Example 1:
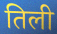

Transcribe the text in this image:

तिली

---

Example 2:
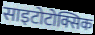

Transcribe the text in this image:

साइटोटोक्सिक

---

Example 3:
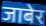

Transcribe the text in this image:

जाबेर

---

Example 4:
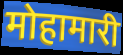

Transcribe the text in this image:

मोहामारी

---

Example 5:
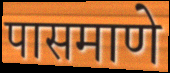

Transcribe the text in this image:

पासमाणे